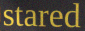
stared